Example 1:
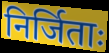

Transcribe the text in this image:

निर्जिताः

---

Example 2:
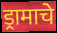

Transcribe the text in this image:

ड्रामाचे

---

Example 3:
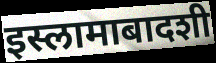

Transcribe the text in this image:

इस्लामाबादशी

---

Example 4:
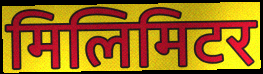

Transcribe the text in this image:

मिलिमिटर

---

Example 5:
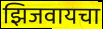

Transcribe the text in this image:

झिजवायचा